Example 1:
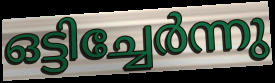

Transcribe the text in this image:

ഒട്ടിച്ചേർന്നു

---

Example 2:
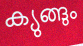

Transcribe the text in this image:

ക്യുങ്ങും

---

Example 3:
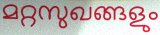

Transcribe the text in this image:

മറ്റസുഖങ്ങളും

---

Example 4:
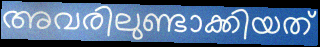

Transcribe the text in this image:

അവരിലുണ്ടാക്കിയത്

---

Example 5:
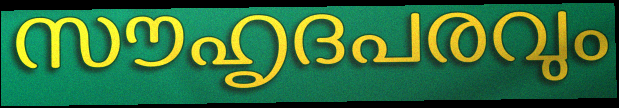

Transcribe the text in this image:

സൗഹൃദപരവും